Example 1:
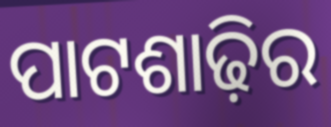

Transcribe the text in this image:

ପାଟଶାଢ଼ିର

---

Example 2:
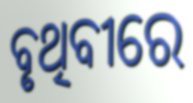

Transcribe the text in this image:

ବୃଥିବୀରେ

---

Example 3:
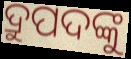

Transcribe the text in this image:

ଦ୍ରୁପଦଙ୍କୁ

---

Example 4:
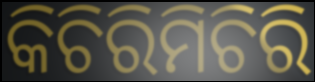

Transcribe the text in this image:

କିଚିରିମିଚିରି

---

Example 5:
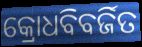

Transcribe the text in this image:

କ୍ରୋଧବିବର୍ଜିତ